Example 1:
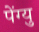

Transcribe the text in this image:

पेंग्यु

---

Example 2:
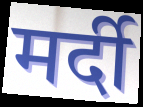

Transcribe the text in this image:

मर्दी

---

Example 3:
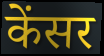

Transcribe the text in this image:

केंसर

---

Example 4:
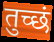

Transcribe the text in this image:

तुच्छं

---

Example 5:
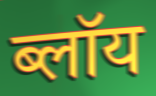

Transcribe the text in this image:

ब्लॉय